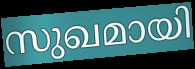
സുഖമായി